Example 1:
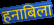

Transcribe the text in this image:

हनाबिला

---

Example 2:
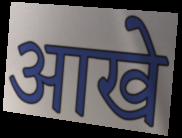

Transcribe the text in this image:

आखे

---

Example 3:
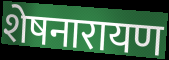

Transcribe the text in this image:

शेषनारायण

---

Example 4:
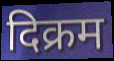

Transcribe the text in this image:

दिक्रम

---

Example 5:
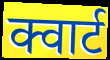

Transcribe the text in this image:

क्वार्ट